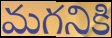
మగనికి